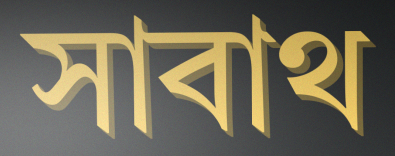
সাবাথ